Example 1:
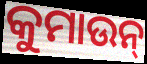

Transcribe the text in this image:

କୁମାଉନ୍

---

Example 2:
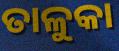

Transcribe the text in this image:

ତାଳୁକା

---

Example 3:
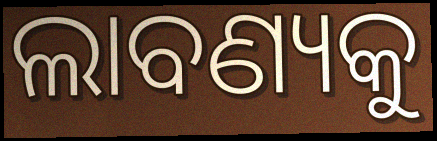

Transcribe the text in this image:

ଲାବଣ୍ୟକୁ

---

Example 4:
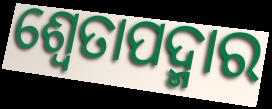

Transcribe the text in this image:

ଶ୍ଵେତାପଦ୍ମାର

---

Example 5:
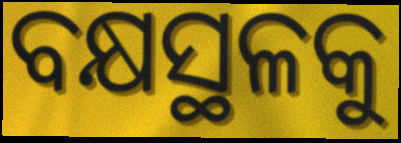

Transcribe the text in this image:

ବକ୍ଷସ୍ଥଳକୁ